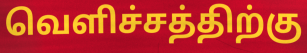
வெளிச்சத்திற்கு